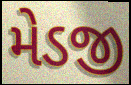
મેડજી